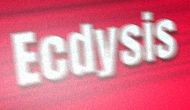
Ecdysis